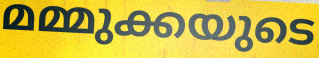
മമ്മുക്കയുടെ